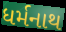
ધર્મનાથ